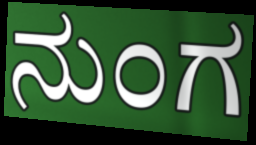
ನುಂಗ